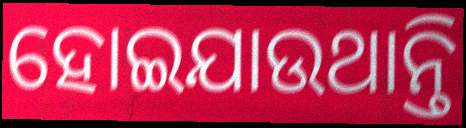
ହୋଇଯାଉଥାନ୍ତି